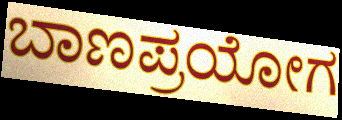
ಬಾಣಪ್ರಯೋಗ